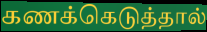
கணக்கெடுத்தால்